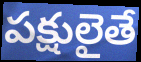
పక్షులైతే